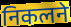
निकलने